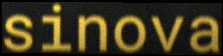
sinova